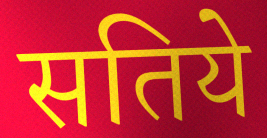
सतिये